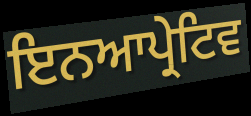
ਇਨਆਪ੍ਰੇਟਿਵ